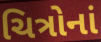
ચિત્રોનાં